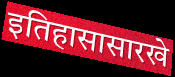
इतिहासासारखे